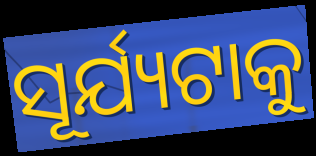
ସୂର୍ଯ୍ୟଟାକୁ